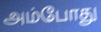
அம்போது